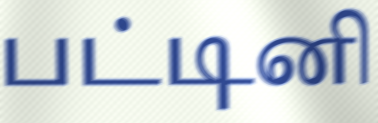
பட்டினி